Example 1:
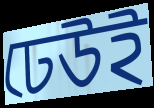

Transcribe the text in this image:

ঢেউই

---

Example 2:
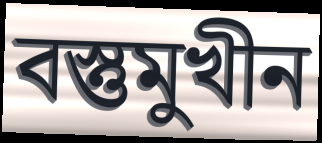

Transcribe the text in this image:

বস্তুমুখীন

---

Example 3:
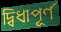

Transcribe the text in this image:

দ্বিধাপূর্ণ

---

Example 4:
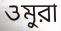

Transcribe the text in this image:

ওমুরা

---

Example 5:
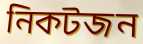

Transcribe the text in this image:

নিকটজন